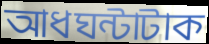
আধঘন্টাটাক